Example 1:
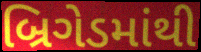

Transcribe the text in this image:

બ્રિગેડમાંથી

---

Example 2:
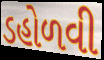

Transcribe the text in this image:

ડહોળવી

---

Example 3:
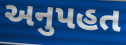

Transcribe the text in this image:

અનુપહત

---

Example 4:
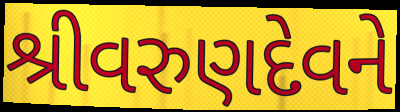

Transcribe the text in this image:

શ્રીવરુણદેવને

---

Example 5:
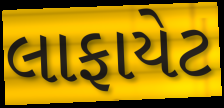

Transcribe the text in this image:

લાફાયેટ